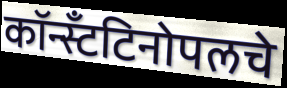
कॉन्स्टँटिनोपलचे